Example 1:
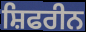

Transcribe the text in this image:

ਸ਼ਿਫਰੀਨ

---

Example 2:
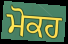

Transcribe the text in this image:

ਮੋਕਹ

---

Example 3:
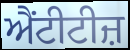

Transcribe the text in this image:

ਐਂਟੀਟੀਜ਼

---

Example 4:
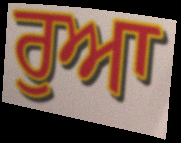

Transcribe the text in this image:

ਰੁਆ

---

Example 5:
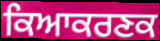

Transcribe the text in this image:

ਕਿਆਕਰਣਕ